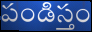
పండిస్తం